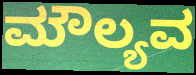
ಮೌಲ್ಯವ